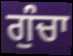
ਗੁੰਚਾ